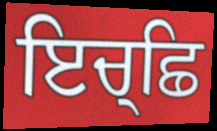
ਇਚ੍ਛਿ